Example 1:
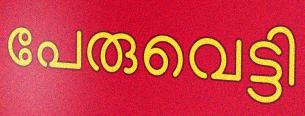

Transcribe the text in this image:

പേരുവെട്ടി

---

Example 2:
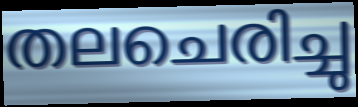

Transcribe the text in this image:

തലചെരിച്ചു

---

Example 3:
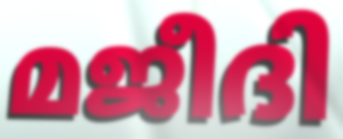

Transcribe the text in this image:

മജീദി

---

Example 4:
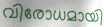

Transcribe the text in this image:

വിരോധമായി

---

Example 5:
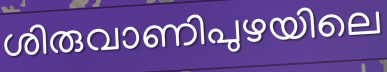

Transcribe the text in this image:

ശിരുവാണിപുഴയിലെ